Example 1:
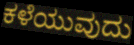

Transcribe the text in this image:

ಕಳೆಯುವುದು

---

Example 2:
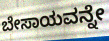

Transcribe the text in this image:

ಬೇಸಾಯವನ್ನೇ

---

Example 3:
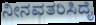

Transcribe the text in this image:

ನೀನವತರಿಸಿದೈ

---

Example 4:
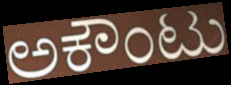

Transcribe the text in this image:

ಅಕೌಂಟು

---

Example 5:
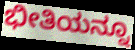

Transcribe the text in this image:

ಭೀತಿಯನ್ನೂ